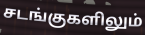
சடங்குகளிலும்